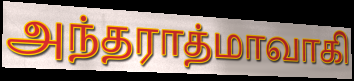
அந்தராத்மாவாகி